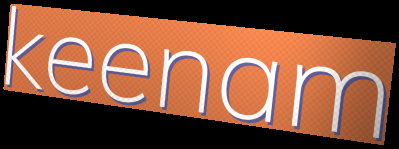
keenam